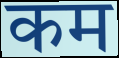
कम